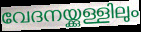
വേദനയ്ക്കുള്ളിലും